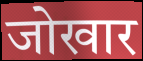
जोखार